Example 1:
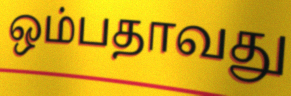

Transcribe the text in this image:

ஒம்பதாவது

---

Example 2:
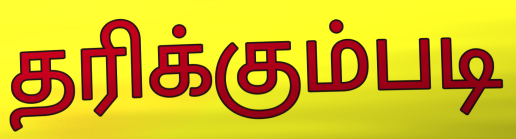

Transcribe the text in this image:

தரிக்கும்படி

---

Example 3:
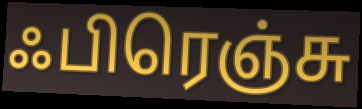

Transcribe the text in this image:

ஃபிரெஞ்சு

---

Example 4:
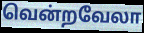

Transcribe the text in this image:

வென்றவேலா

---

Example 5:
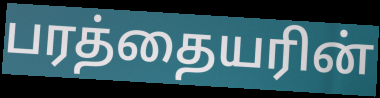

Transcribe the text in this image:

பரத்தையரின்